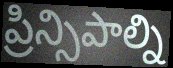
ప్రిన్సిపాల్ని